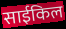
साईकिल